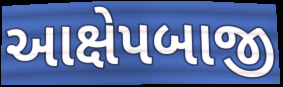
આક્ષેપબાજી